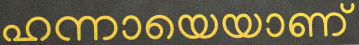
ഹന്നായെയാണ്